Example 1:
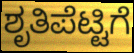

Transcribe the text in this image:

ಶೃತಿಪೆಟ್ಟಿಗೆ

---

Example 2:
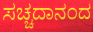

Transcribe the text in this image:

ಸಚ್ಚದಾನಂದ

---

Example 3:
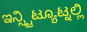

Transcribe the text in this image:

ಇನ್ಸ್ಟಿಟ್ಯೂಟ್ನಲ್ಲಿ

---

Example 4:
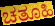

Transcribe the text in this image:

ಚತೂಹಿ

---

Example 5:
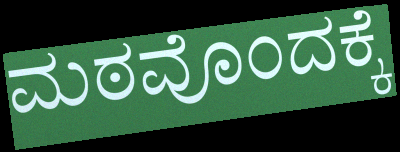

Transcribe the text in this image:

ಮಠವೊಂದಕ್ಕೆ